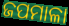
ଜପମାଳା